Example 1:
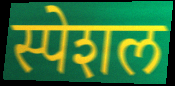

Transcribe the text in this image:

स्पेशल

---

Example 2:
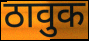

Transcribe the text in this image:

ठावुक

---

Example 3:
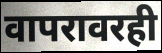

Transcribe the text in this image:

वापरावरही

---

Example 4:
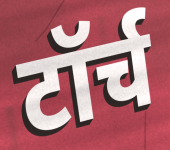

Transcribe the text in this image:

टॉर्च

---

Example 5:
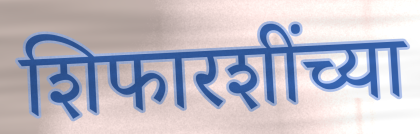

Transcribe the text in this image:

शिफारशींच्या